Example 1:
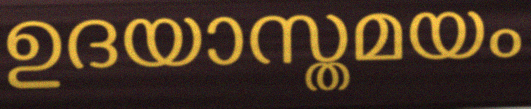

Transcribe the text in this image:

ഉദയാസ്തമയം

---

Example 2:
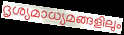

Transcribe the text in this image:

ദൃശ്യമാധ്യമങ്ങളിലും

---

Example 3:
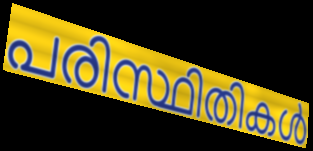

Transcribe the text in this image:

പരിസ്ഥിതികൾ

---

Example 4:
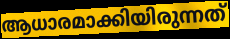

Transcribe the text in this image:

ആധാരമാക്കിയിരുന്നത്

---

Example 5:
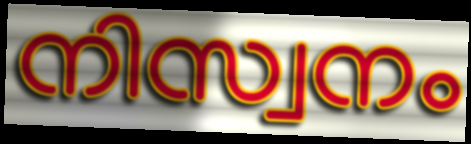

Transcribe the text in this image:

നിസ്വനം